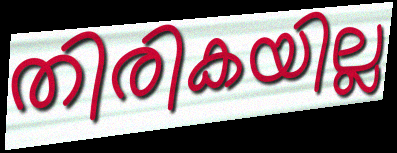
തിരികയില്ല